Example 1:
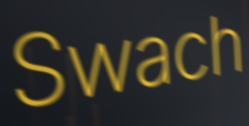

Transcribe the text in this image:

Swach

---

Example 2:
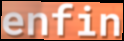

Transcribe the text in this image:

enfin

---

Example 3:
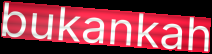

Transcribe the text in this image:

bukankah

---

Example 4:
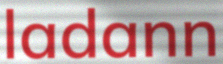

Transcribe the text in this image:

ladann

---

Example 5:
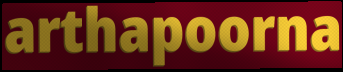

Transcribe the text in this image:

arthapoorna